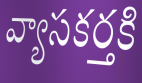
వ్యాసకర్తకి